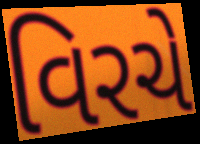
વિરચે